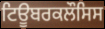
ਟਿਊਬਰਕਲੌਸਿਸ